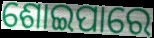
ଶୋଇପାରେ